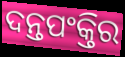
ଦନ୍ତପଂକ୍ତିର